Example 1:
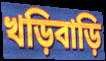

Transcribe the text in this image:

খড়িবাড়ি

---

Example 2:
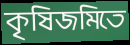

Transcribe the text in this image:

কৃষিজমিতে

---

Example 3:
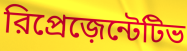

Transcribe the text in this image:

রিপ্রেজ়েন্টেটিভ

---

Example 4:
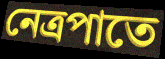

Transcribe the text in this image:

নেত্রপাতে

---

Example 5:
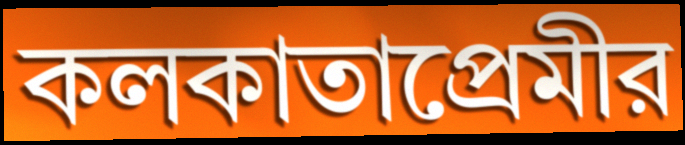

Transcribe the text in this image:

কলকাতাপ্রেমীর